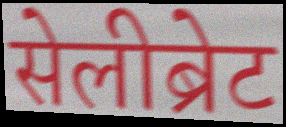
सेलीब्रेट